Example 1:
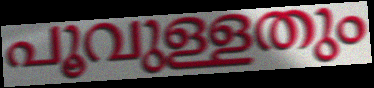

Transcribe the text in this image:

പൂവുള്ളതും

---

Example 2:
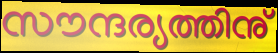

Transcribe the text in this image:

സൗന്ദര്യത്തിനു്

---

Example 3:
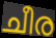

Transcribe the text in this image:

ചീര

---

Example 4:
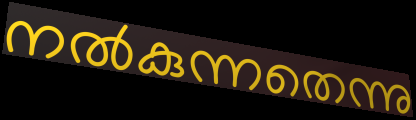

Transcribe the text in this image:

നൽകുന്നതെന്നു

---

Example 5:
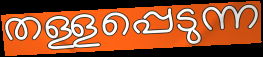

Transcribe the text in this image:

തള്ളപ്പെടുന്ന